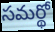
సమర్థో